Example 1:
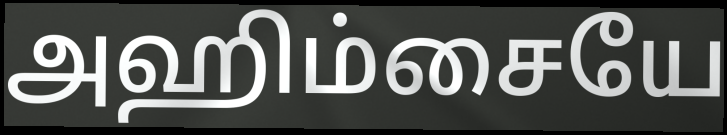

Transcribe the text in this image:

அஹிம்சையே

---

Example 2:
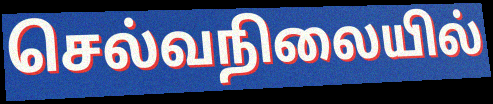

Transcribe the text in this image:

செல்வநிலையில்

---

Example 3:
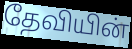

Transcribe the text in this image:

தேவியின்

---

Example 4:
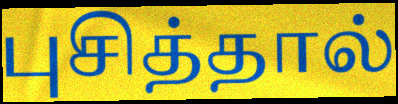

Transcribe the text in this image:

புசித்தால்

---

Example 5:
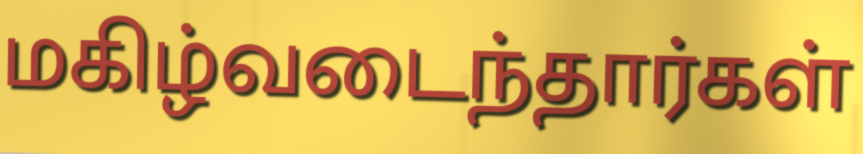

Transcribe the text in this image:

மகிழ்வடைந்தார்கள்